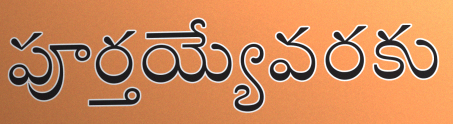
పూర్తయ్యేవరకు